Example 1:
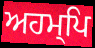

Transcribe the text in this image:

ਅਹਮ੍ਪਿ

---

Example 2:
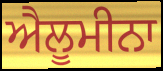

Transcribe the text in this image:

ਐਲੂਮੀਨਾ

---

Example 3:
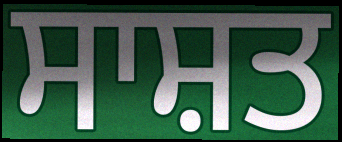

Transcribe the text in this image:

ਸਾਸ਼ਤ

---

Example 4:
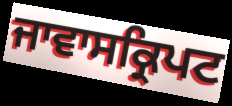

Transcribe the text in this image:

ਜਾਵਾਸਕ੍ਰਿਪਟ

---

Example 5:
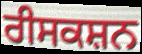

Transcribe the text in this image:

ਰੀਸਕਸ਼ਨ